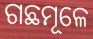
ଗଛମୂଳେ